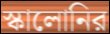
স্কালোনির